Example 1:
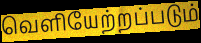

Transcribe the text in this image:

வெளியேற்றப்படும்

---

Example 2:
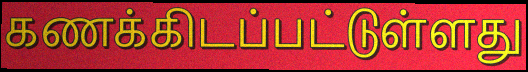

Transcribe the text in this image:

கணக்கிடப்பட்டுள்ளது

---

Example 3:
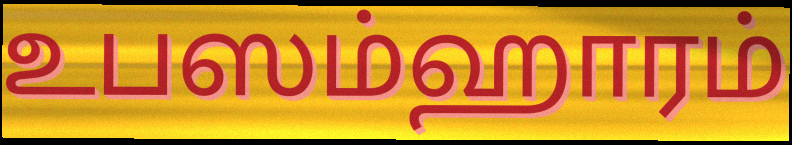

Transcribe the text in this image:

உபஸம்ஹாரம்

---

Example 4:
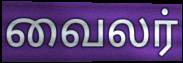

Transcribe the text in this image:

வைலர்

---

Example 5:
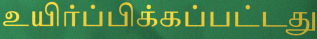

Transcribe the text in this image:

உயிர்ப்பிக்கப்பட்டது